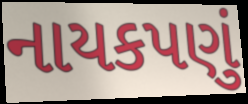
નાયકપણું